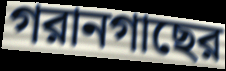
গরানগাছের